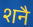
शनै